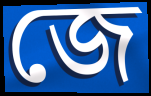
জে